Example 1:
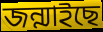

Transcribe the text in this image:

জন্মাইছে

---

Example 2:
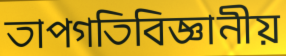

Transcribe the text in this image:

তাপগতিবিজ্ঞানীয়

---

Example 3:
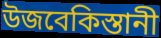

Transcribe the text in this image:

উজবেকিস্তানী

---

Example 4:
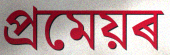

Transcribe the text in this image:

প্ৰমেয়ৰ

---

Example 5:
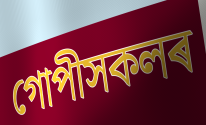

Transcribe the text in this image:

গোপীসকলৰ